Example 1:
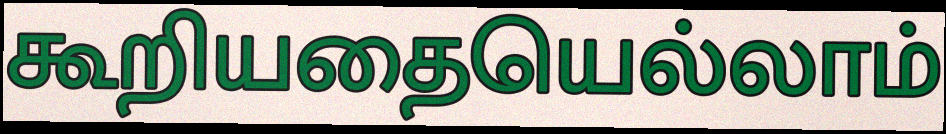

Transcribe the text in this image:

கூறியதையெல்லாம்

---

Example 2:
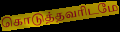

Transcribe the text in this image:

கொடுத்தவரிடமே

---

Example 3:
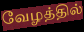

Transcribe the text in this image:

வேழத்தில்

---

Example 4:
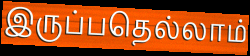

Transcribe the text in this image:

இருப்பதெல்லாம்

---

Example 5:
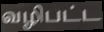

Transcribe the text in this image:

வழிபட்ட